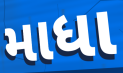
માધા